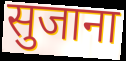
सुजाना